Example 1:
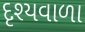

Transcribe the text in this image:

દૃશ્યવાળા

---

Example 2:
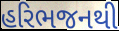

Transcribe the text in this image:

હરિભજનથી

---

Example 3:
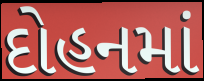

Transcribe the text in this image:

દોહનમાં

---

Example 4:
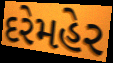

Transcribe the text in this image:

દરેમહેર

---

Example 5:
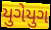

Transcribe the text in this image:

યુગેયુગ